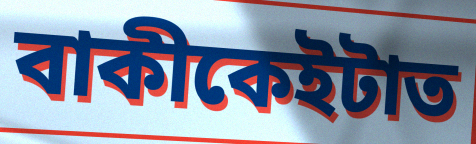
বাকীকেইটাত